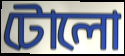
টোলো